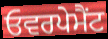
ਓਵਰਪੇਮੈਂਟ